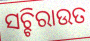
ସଚ୍ଚିରାଉତ